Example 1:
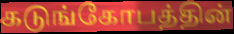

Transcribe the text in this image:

கடுங்கோபத்தின்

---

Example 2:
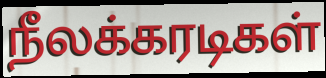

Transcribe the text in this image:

நீலக்கரடிகள்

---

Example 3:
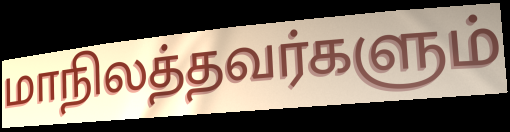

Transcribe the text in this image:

மாநிலத்தவர்களும்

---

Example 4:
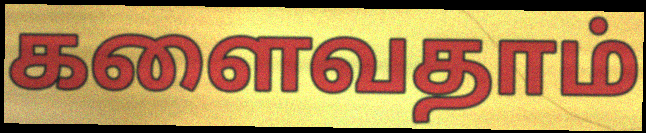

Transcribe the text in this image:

களைவதாம்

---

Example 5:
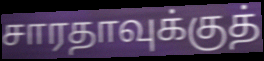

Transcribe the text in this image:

சாரதாவுக்குத்